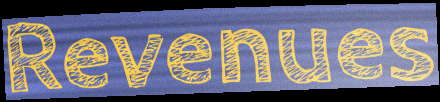
Revenues